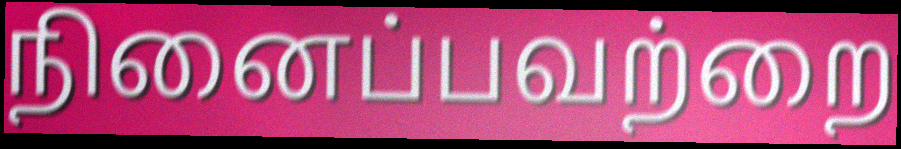
நினைப்பவற்றை